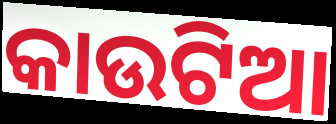
କାଉଟିଆ